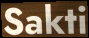
Sakti